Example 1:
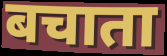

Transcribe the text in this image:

बचाता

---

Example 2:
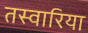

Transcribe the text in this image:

तस्वारिया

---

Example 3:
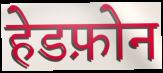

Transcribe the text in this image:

हेडफ़ोन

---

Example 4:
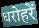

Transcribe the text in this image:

धरोहरें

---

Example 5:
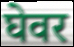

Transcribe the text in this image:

घेवर